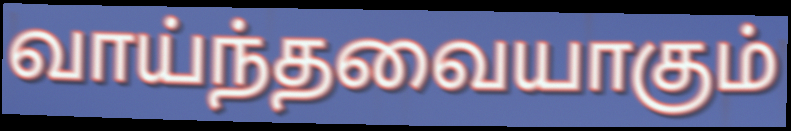
வாய்ந்தவையாகும்